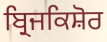
ਬ੍ਰਿਜਕਿਸ਼ੋਰ